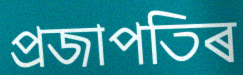
প্ৰজাপতিৰ